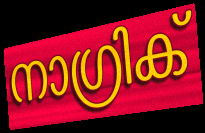
നാഗ്രിക്